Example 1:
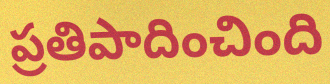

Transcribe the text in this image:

ప్రతిపాదించింది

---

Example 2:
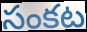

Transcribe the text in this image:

సంకట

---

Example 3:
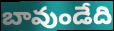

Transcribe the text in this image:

బావుండేది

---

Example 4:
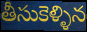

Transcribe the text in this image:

తీసుకెళ్ళిన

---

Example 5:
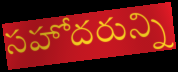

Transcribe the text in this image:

సహోదరున్ని